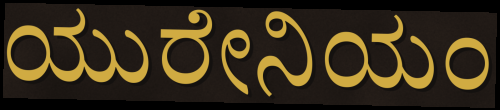
ಯುರೇನಿಯಂ